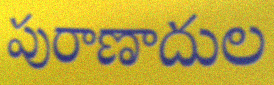
పురాణాదుల